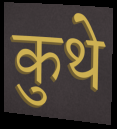
कुथे